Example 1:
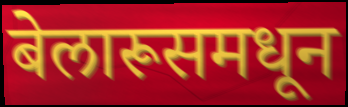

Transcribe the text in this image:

बेलारूसमधून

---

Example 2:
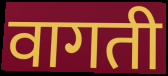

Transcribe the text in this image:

वागती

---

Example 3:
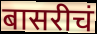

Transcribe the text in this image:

बासरीचं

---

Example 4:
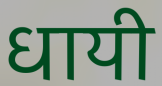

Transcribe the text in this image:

धायी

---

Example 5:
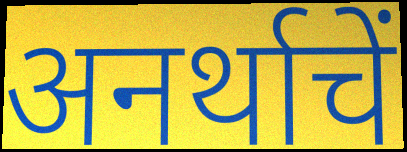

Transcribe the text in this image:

अनर्थाचें